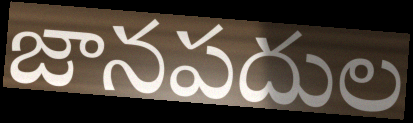
జానపదుల